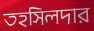
তহসিলদার